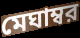
মেঘাম্বর